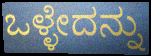
ಒಳ್ಳೇದನ್ನು